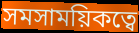
সমসাময়িকত্বে